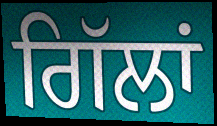
ਗਿੱਲਾਂ